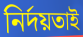
নির্দয়তাই